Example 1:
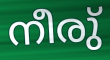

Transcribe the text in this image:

നീരു്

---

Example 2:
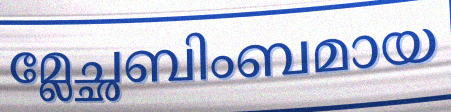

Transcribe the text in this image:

മ്ലേച്ഛബിംബമായ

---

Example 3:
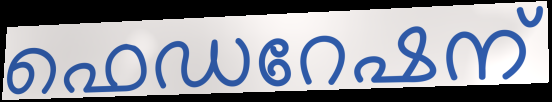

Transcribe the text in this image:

ഫെഡറേഷന്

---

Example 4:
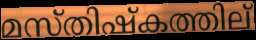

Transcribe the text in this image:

മസ്തിഷ്കത്തില്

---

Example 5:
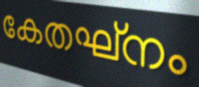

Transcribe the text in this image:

കേതഘ്നം